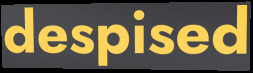
despised